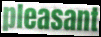
pleasant